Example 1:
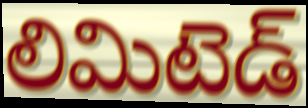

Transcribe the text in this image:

లిమిటెడ్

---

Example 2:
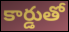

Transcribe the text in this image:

కార్డుతో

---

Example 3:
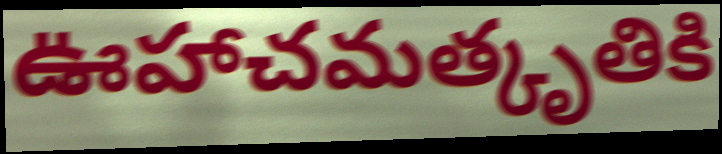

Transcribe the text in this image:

ఊహాచమత్కృతికి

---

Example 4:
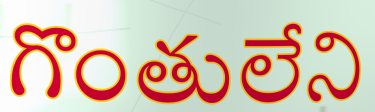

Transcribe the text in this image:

గొంతులేని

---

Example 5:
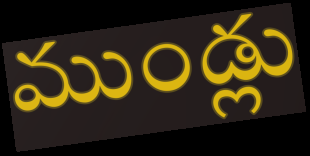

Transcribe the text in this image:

ముండ్లు